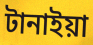
টানাইয়া